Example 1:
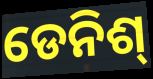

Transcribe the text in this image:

ଡେନିଶ୍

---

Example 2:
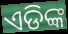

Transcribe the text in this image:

ଏଡିଙ୍କ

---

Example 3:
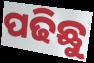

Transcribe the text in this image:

ପଢିଛୁ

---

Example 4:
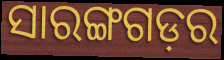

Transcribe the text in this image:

ସାରଙ୍ଗଗଡ଼ର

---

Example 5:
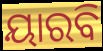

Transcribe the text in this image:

ୟାରବି